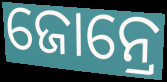
ଜୋନ୍ରେ